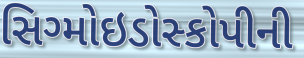
સિગ્મોઇડોસ્કોપીની